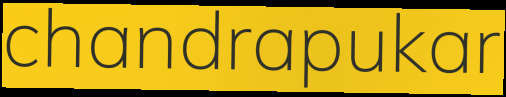
chandrapukar